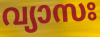
വ്യാസഃ